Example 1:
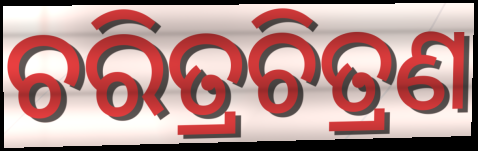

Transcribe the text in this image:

ଚରିତ୍ରଚିତ୍ରଣ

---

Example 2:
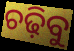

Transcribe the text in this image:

ଚଢ଼ିବୁ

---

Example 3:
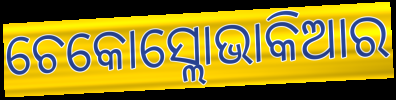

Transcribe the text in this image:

ଚେକୋସ୍ଲୋଭାକିଆର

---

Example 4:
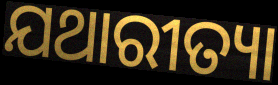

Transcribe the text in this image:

ଯଥାରୀତ୍ୟା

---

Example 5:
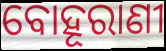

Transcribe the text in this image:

ବୋହୂରାଣୀ